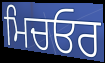
ਮਿਚਓਰ